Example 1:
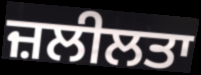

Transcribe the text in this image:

ਜ਼ਲੀਲਤਾ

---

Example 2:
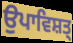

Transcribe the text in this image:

ਉਪਾਵਿਸ਼ਤ੍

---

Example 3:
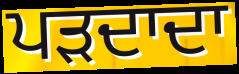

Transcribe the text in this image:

ਪੜਦਾਦਾ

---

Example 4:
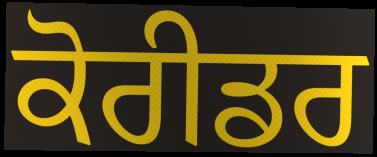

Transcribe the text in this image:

ਕੋਰੀਡਰ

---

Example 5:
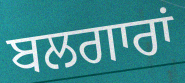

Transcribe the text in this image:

ਬਲਗਾਰਾਂ